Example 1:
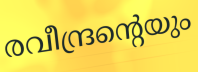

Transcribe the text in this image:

രവീന്ദ്രന്റെയും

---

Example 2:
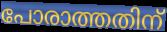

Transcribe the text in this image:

പോരാത്തതിന്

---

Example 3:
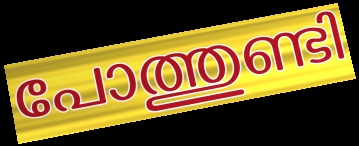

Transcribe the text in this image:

പോത്തുണ്ടി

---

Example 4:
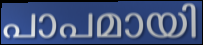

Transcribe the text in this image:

പാപമായി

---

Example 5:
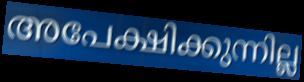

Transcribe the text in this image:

അപേക്ഷിക്കുന്നില്ല